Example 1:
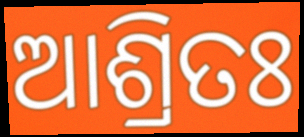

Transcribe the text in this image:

ଆଶ୍ରିତଃ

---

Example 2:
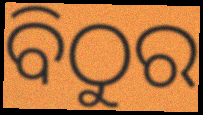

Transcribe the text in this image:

ବିଠୁର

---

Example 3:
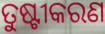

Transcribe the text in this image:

ତୁଷ୍ଟୀକରଣ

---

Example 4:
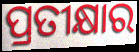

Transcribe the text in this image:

ପ୍ରତୀକ୍ଷାର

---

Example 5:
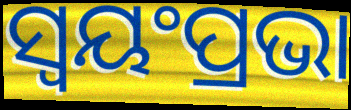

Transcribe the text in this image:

ସ୍ଵୟଂପ୍ରଭା